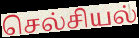
செல்சியல்